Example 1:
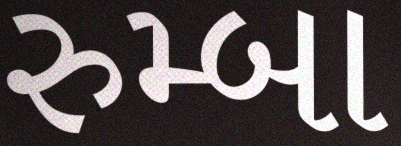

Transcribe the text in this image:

રુમ્બા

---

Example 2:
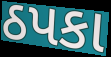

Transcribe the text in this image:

ઠપકા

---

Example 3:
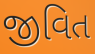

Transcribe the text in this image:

જીવિત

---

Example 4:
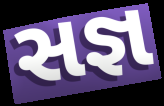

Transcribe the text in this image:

સજ્ઞ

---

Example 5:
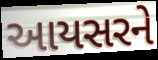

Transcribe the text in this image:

આયસરને